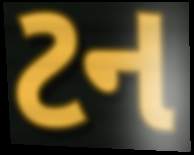
ટન